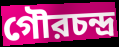
গৌরচন্দ্র